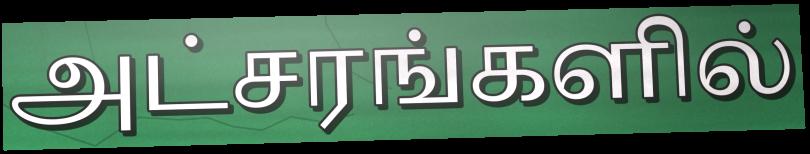
அட்சரங்களில்